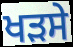
ਖੜਸੇ